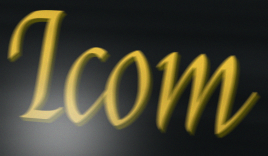
Icom